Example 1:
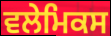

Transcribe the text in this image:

ਵਲੇਮਿਕਸ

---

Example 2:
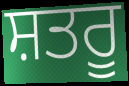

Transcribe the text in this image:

ਸ਼ਤਰੂ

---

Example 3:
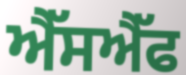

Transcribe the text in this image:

ਐੱਸਐੱਫ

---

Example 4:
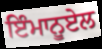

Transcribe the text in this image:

ਇੰਮਾਨੂਏਲ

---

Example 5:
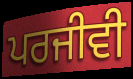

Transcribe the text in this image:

ਪਰਜੀਵੀ